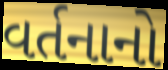
વર્તનાનો